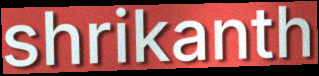
shrikanth